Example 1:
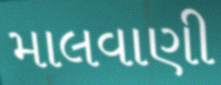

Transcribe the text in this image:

માલવાણી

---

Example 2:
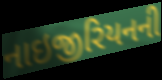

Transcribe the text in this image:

નાઇજીરિયનની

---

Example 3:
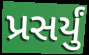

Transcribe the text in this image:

પ્રસર્યું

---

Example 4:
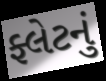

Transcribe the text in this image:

ફ્લેટનું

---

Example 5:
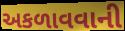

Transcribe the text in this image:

અકળાવવાની